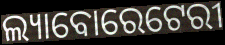
ଲ୍ୟାବୋରେଟେରୀ